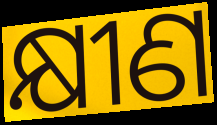
କ୍ଷୀଣ